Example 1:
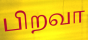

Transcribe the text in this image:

பிறவா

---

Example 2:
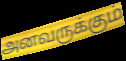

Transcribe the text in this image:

அனவருக்கும்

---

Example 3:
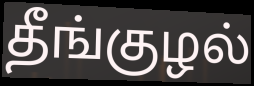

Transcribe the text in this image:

தீங்குழல்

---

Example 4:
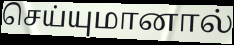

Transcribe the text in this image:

செய்யுமானால்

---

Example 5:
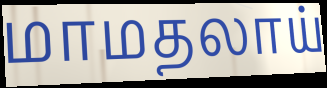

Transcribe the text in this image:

மாமதலாய்